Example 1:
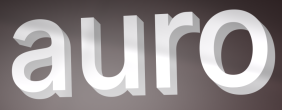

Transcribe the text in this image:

auro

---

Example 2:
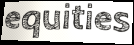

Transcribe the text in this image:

equities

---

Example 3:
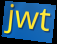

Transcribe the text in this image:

jwt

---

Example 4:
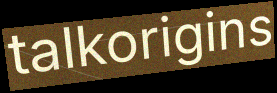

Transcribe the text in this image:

talkorigins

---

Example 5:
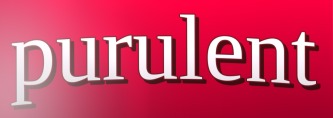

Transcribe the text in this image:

purulent